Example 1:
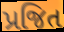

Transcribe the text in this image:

પ્રજિત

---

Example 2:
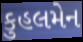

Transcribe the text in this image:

કુહલમેન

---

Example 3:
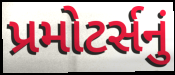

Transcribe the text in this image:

પ્રમોટર્સનું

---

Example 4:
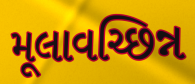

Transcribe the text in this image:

મૂલાવચ્છિન્ન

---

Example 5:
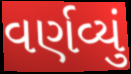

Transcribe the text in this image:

વર્ણવ્યું